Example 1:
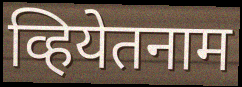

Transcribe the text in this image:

व्हियेतनाम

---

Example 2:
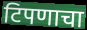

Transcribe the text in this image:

टिपणाचा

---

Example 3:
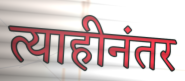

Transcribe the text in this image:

त्याहीनंतर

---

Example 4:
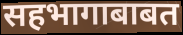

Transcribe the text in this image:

सहभागाबाबत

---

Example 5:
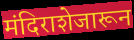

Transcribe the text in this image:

मंदिराशेजारून